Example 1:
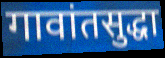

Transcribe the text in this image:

गावांतसुद्धा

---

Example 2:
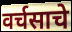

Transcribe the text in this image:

वर्चसाचे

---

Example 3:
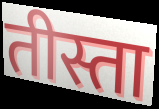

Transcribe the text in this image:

तीस्ता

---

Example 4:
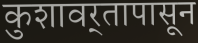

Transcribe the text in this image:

कुशावर्तापासून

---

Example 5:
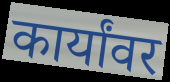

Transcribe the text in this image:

कार्यांवर